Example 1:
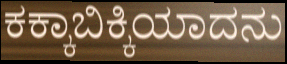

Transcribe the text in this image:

ಕಕ್ಕಾಬಿಕ್ಕಿಯಾದನು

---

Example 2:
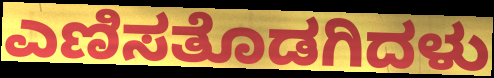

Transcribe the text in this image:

ಎಣಿಸತೊಡಗಿದಳು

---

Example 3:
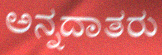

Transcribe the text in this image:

ಅನ್ನದಾತರು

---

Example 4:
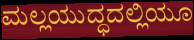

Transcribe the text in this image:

ಮಲ್ಲಯುದ್ಧದಲ್ಲಿಯೂ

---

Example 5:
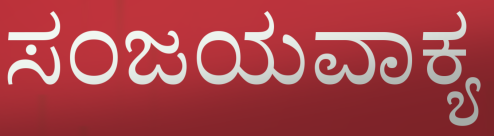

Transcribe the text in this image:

ಸಂಜಯವಾಕ್ಯ